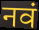
नवं